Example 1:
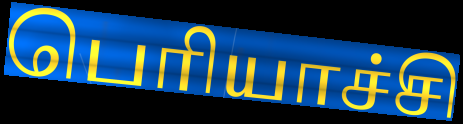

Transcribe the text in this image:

பெரியாச்சி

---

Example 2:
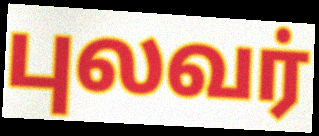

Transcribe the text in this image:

புலவர்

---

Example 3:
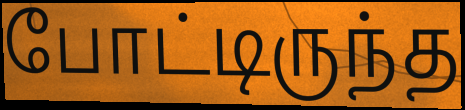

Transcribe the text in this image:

போட்டிருந்த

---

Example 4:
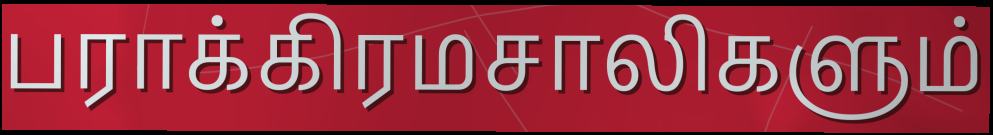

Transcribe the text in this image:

பராக்கிரமசாலிகளும்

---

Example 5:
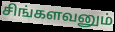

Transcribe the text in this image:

சிங்களவனும்